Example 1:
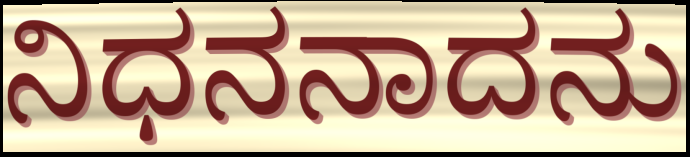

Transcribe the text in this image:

ನಿಧನನಾದನು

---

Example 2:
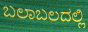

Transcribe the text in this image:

ಬಲಾಬಲದಲ್ಲಿ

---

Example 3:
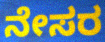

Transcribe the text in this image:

ನೇಸರ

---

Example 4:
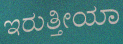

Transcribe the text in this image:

ಇರುತ್ತೀಯಾ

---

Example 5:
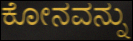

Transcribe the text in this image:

ಕೋನವನ್ನು